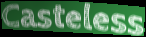
Casteless